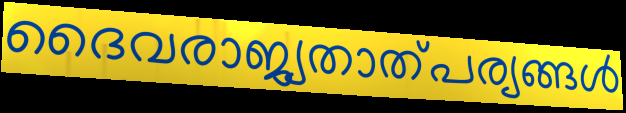
ദൈവരാജ്യതാത്പര്യങ്ങൾ